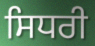
ਸਿਧਰੀ